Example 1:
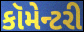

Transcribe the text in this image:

કૉમેન્ટરી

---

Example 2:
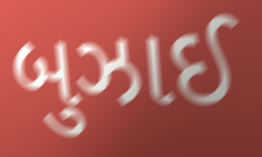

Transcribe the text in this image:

બુઝાઈ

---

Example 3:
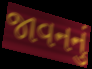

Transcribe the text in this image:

જાવનનું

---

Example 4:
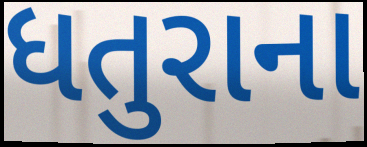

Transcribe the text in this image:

ધતુરાના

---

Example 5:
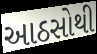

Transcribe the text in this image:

આઠસોથી